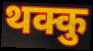
थक्कु